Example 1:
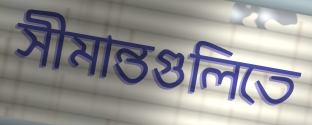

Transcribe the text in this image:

সীমান্তগুলিতে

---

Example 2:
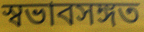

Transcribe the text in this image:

স্বভাবসঙ্গত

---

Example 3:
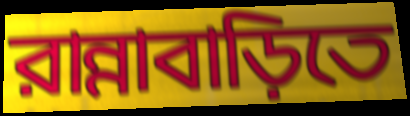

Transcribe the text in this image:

রান্নাবাড়িতে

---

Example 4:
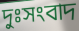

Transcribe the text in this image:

দুঃসংবাদ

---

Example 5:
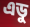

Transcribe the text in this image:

এডু